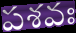
పశవః